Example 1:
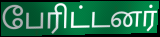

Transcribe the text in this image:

பேரிட்டனர்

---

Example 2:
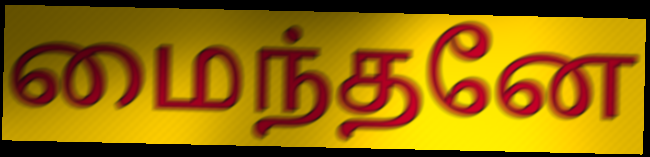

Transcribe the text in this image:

மைந்தனே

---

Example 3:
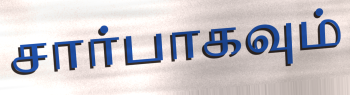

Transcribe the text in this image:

சார்பாகவும்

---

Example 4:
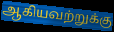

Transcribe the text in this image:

ஆகியவற்றுக்கு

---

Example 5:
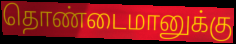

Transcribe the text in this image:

தொண்டைமானுக்கு